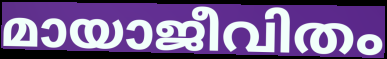
മായാജീവിതം